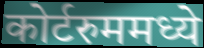
कोर्टरुममध्ये